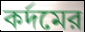
কর্দমের